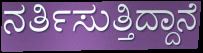
ನರ್ತಿಸುತ್ತಿದ್ದಾನೆ